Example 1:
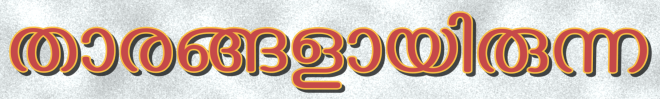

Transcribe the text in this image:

താരങ്ങളായിരുന്ന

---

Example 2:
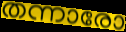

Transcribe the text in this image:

തന്നാരോ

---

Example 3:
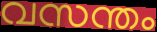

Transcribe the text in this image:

വസന്തം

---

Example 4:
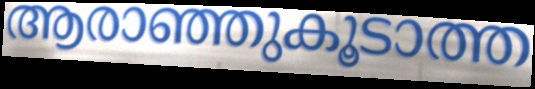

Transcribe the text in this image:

ആരാഞ്ഞുകൂടാത്ത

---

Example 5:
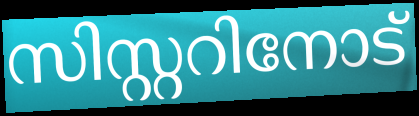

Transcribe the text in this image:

സിസ്റ്ററിനോട്